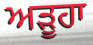
ਅੜੂਹਾ